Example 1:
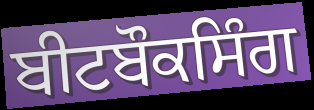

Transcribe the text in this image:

ਬੀਟਬੌਕਸਿੰਗ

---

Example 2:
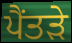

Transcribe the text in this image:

ਪੈਂਤੜੇ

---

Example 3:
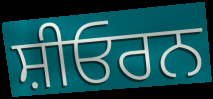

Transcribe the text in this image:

ਸ਼ੀਓਰਨ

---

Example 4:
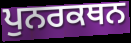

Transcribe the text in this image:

ਪੁਨਰਕਥਨ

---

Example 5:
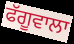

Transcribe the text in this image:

ਫੱਗੂਵਾਲਾ